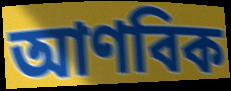
আণবিক